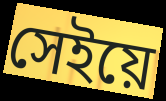
সেইয়ে